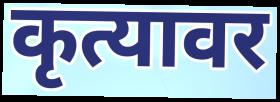
कृत्यावर